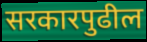
सरकारपुढील